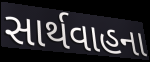
સાર્થવાહના